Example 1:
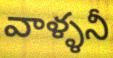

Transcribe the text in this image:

వాళ్ళనీ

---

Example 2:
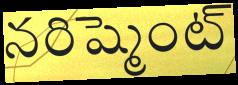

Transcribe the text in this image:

నరిష్మెంట్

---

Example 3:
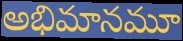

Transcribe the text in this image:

అభిమానమూ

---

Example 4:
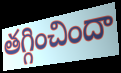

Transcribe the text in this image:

తగ్గించిందా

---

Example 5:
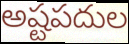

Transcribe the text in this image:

అష్టపదుల